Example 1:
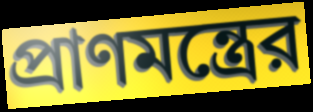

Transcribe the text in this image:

প্রাণমন্ত্রের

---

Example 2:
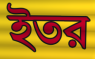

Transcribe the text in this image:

ইতর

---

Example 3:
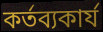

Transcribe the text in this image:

কর্তব্যকার্য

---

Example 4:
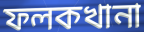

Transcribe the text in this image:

ফলকখানা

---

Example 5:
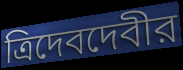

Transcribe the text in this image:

ত্রিদেবদেবীর